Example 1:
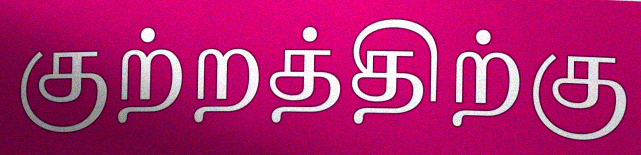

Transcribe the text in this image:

குற்றத்திற்கு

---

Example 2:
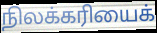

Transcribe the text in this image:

நிலக்கரியைக்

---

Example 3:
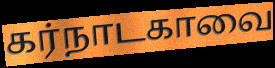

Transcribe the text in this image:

கர்நாடகாவை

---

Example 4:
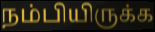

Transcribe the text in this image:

நம்பியிருக்க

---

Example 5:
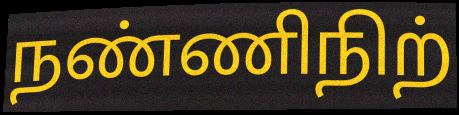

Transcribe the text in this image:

நண்ணிநிற்